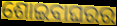
ଶୋଇବାଘରର